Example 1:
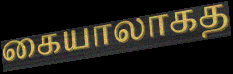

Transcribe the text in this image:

கையாலாகத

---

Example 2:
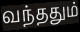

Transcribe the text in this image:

வந்ததும்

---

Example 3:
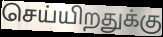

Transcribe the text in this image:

செய்யிறதுக்கு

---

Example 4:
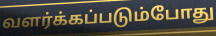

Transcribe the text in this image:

வளர்க்கப்படும்போது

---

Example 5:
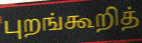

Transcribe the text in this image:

புறங்கூறித்